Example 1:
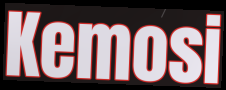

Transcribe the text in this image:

Kemosi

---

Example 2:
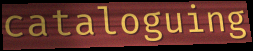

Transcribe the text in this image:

cataloguing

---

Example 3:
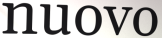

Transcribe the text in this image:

nuovo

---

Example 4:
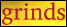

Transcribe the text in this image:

grinds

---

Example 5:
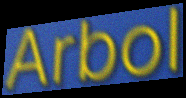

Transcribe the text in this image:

Arbol